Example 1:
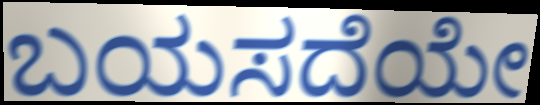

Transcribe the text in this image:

ಬಯಸದೆಯೇ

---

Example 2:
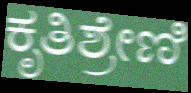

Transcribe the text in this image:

ಕೃತಿಶ್ರೇಣಿ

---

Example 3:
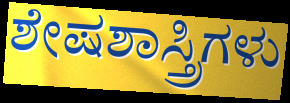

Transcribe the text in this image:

ಶೇಷಶಾಸ್ತ್ರಿಗಳು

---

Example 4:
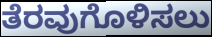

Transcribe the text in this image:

ತೆರವುಗೊಳಿಸಲು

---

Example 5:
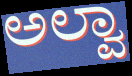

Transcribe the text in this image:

ಅಲ್ವಾ